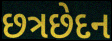
છત્રછેદન